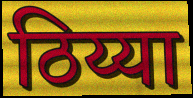
ठिय्या